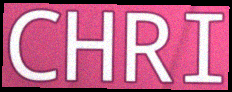
CHRI